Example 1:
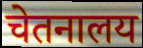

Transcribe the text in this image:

चेतनालय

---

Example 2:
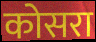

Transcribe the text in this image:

कोसरा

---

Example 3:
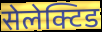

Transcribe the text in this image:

सेलेक्टिड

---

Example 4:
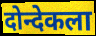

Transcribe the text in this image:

दोन्देकला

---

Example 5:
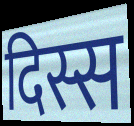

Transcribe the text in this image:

दिस्स